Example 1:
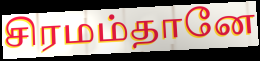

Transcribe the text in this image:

சிரமம்தானே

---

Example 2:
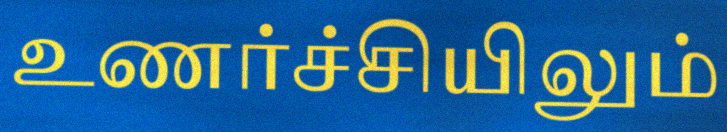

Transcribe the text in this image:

உணர்ச்சியிலும்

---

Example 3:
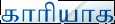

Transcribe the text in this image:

காரியாக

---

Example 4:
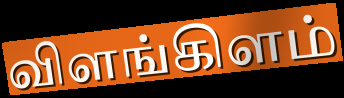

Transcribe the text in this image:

விளங்கிளம்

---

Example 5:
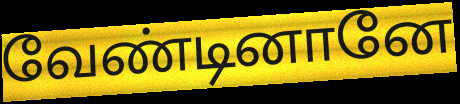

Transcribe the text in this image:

வேண்டினானே